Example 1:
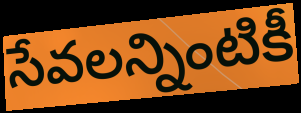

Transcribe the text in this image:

సేవలన్నింటికీ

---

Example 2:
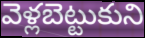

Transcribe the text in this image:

వెళ్లబెట్టుకుని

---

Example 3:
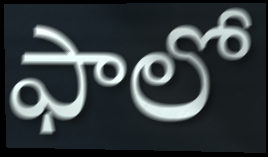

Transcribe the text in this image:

ఫాలో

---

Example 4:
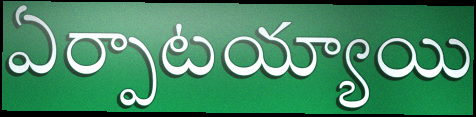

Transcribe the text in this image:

ఏర్పాటయ్యాయి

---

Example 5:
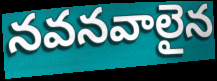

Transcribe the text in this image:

నవనవాలైన